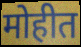
मोहीत